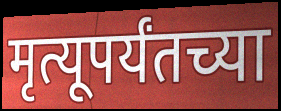
मृत्यूपर्यंतच्या